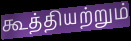
கூத்தியற்றும்